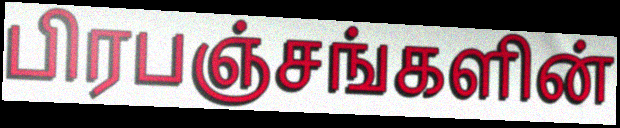
பிரபஞ்சங்களின்